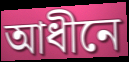
আধীনে